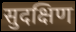
सुदक्षिण